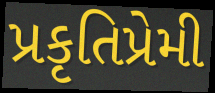
પ્રકૃતિપ્રેમી